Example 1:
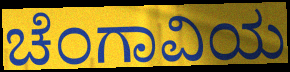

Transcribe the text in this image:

ಚೆಂಗಾವಿಯ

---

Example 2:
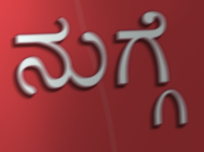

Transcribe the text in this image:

ನುಗ್ಗೆ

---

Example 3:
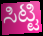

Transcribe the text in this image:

ಸಿಟ್ಟಿ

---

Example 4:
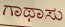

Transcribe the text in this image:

ಗಾಥಾಸು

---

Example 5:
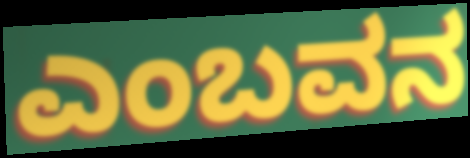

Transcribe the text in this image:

ಎಂಬವನ